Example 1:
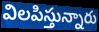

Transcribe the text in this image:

విలపిస్తున్నారు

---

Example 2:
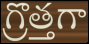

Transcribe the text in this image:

గ్రొత్తగా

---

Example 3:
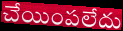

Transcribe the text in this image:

చేయింపలేదు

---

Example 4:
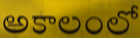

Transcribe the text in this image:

అకాలంలో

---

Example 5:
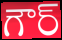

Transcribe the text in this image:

గౌర్